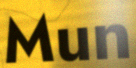
Mun